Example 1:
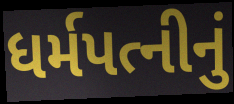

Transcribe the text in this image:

ધર્મપત્નીનું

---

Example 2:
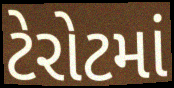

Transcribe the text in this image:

ટેરોટમાં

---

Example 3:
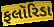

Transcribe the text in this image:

ફલૉરિડા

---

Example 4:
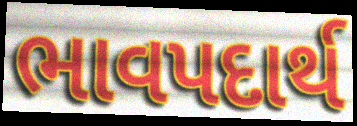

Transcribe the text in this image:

ભાવપદાર્થ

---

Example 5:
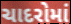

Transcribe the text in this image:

ચાદરોમાં